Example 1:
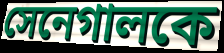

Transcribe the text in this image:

সেনেগালকে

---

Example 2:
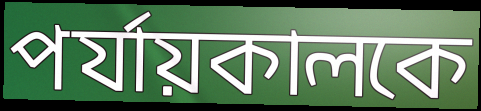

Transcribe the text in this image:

পর্যায়কালকে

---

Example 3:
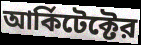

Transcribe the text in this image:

আর্কিটেক্টের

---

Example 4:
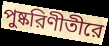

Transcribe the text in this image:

পুষ্করিণীতীরে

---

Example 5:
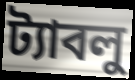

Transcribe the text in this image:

ট্যাবলু